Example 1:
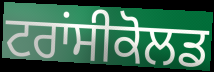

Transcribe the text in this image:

ਟਰਾਂਸੀਕੋਲਡ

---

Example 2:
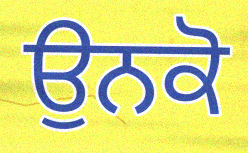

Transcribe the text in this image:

ਉਨਕੋ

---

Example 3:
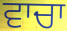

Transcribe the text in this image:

ਵਾਚਾ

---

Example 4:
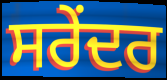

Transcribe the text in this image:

ਸਰੇਂਦਰ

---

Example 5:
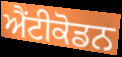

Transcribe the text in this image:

ਐਂਟੀਕੋਡਨ